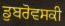
ਡੁਬਰੋਵਸਕੀ